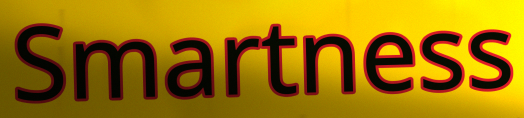
Smartness